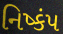
નિષ્કંપ